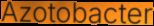
Azotobacter